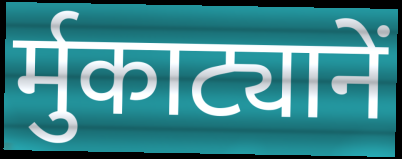
र्मुकाट्यानें